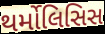
થર્મોલિસિસ